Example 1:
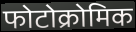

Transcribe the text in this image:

फोटोक्रोमिक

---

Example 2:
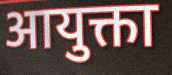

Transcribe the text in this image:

आयुक्ता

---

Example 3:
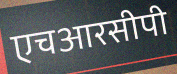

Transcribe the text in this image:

एचआरसीपी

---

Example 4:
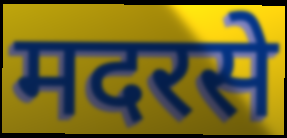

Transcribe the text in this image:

मदरसे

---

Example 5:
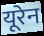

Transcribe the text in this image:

यूरेन